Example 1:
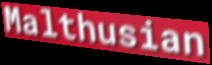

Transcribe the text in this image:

Malthusian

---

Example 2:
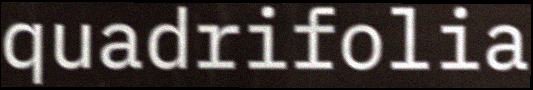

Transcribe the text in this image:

quadrifolia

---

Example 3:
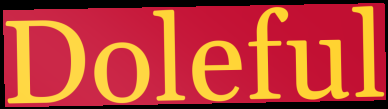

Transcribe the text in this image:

Doleful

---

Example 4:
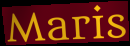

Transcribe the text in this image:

Maris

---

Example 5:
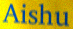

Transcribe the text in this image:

Aishu